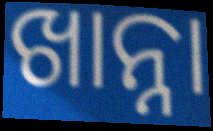
ଖାନ୍ନା